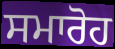
ਸਮਾਰੋਹ